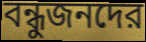
বন্ধুজনদের